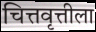
चित्तवृत्तीला